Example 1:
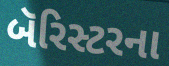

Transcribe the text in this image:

બૅરિસ્ટરના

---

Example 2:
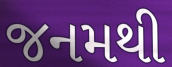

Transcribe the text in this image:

જનમથી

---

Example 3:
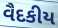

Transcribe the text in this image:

વૈદકીય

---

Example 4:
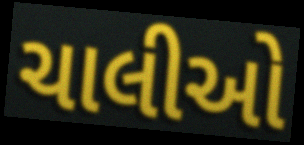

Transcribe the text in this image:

ચાલીઓ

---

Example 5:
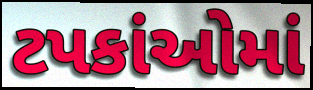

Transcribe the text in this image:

ટપકાંઓમાં